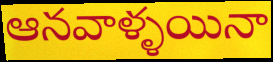
ఆనవాళ్ళయినా